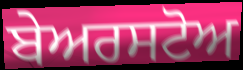
ਬੇਅਰਸਟੋਅ